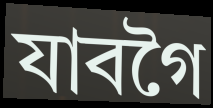
যাবগৈ